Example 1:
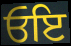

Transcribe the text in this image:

ਓਇ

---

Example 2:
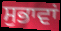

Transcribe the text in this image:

ਸੁਭਾਵਾਂ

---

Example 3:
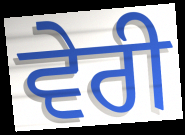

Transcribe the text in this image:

ਵੇਰੀ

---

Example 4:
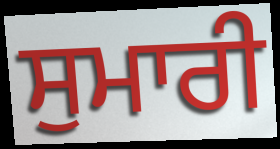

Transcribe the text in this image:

ਸੁਮਾਰੀ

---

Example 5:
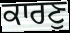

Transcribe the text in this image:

ਕਾਰਣੁ